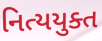
નિત્યયુક્ત